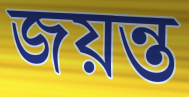
জয়ন্ত